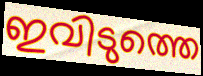
ഇവിടുത്തെ